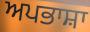
ਅਪਭਾਸ਼ਾ